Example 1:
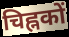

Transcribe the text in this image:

चिह्नकों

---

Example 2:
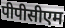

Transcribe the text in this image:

पीपीसीएम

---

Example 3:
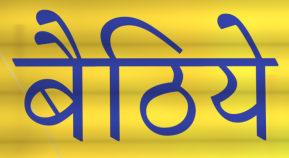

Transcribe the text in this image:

बैठिये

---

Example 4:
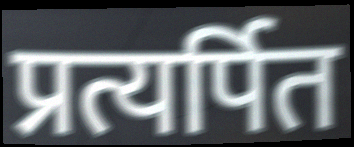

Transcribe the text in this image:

प्रत्यर्पित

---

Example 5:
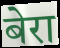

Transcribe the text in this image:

बेरा